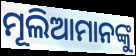
ମୂଲିଆମାନଙ୍କୁ